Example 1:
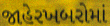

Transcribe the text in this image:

જાહેરખબરોમાં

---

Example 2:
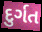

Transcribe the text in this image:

દુર્ગત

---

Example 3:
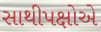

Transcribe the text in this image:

સાથીપક્ષોએ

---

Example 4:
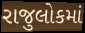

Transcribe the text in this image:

રાજુલોકમાં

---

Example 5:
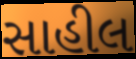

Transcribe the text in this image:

સાહીલ